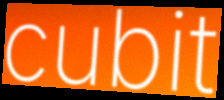
cubit